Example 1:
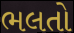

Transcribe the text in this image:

ભલતો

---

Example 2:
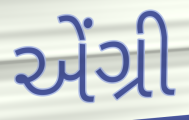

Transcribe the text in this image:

એંગ્રી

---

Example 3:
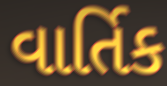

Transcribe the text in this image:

વાર્તિક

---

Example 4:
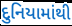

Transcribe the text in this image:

દુનિયામાંથી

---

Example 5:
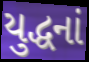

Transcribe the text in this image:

યુદ્ધનાં